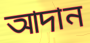
আদান